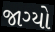
જાગ્યો